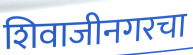
शिवाजीनगरचा